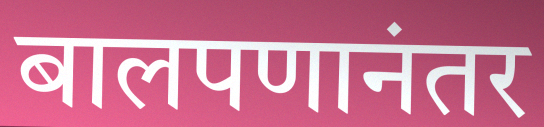
बालपणानंतर